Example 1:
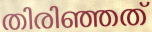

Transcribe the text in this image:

തിരിഞ്ഞത്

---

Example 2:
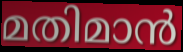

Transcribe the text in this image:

മതിമാൻ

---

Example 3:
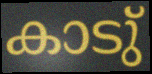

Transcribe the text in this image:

കാടു്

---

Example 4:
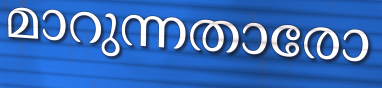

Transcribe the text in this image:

മാറുന്നതാരോ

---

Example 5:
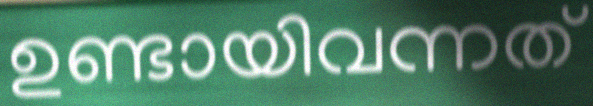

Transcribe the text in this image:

ഉണ്ടായിവന്നത്